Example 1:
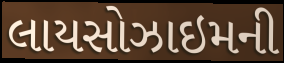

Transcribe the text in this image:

લાયસોઝાઇમની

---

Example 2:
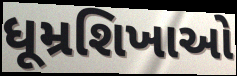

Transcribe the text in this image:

ધૂમ્રશિખાઓ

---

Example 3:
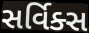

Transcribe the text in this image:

સર્વિક્સ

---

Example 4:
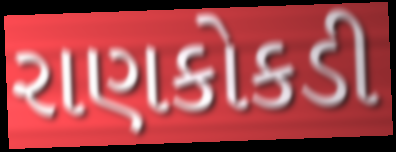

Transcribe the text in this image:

રાણકોકડી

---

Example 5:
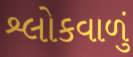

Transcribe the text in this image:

શ્લોકવાળું